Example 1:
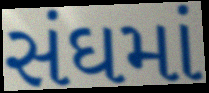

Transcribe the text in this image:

સંઘમાં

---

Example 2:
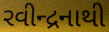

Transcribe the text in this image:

રવીન્દ્રનાથી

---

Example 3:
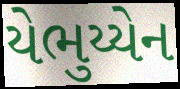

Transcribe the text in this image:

યેભુય્યેન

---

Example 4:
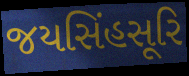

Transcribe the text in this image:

જયસિંહસૂરિ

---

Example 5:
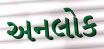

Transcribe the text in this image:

અનલોક